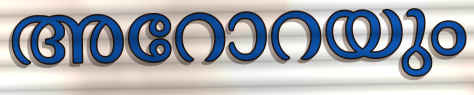
അറോറയും